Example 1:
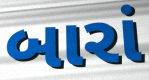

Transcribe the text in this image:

બારાં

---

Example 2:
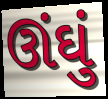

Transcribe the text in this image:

ઊંઘું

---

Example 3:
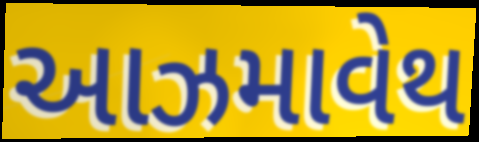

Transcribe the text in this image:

આઝમાવેથ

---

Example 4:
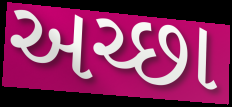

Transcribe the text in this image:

અચ્છા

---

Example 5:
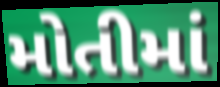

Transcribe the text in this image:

મોતીમાં